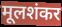
मूलशंकर